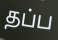
தப்ப